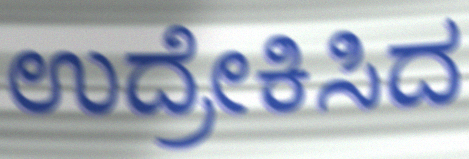
ಉದ್ರೇಕಿಸಿದ